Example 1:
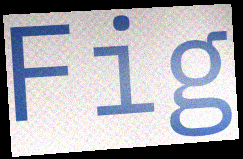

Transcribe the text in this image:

Fig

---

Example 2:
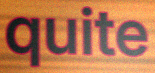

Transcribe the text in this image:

quite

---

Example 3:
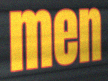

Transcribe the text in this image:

men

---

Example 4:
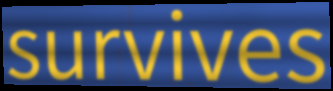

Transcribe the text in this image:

survives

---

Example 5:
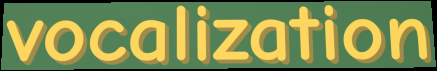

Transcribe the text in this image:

vocalization